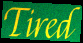
Tired